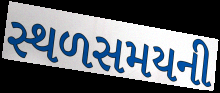
સ્થળસમયની